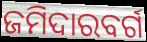
ଜମିଦାରବର୍ଗ